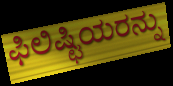
ಫಿಲಿಷ್ಟಿಯರನ್ನು